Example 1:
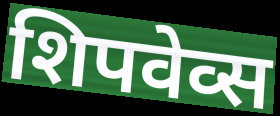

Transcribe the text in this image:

शिपवेव्स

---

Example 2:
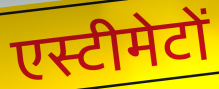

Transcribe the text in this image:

एस्टीमेटों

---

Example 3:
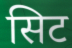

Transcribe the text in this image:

सिट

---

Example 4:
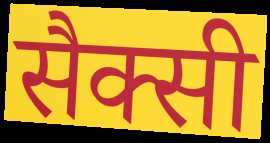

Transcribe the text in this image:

सैक्सी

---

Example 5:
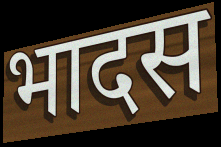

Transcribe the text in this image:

भादस